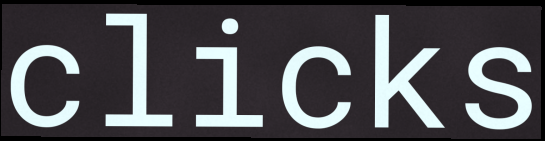
clicks